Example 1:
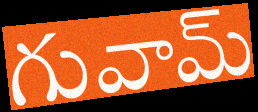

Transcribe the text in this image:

గువామ్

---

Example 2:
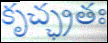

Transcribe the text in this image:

కృచ్ఛ్రతః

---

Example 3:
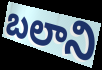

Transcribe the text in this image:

బలాని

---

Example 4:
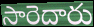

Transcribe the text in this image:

సారెదారు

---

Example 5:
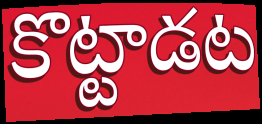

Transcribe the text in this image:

కొట్టాడట